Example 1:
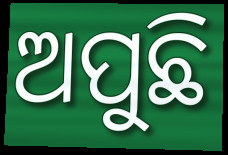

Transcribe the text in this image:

ଅପୁଛି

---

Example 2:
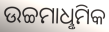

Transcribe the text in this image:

ଉଚ୍ଚମାଧୢମିକ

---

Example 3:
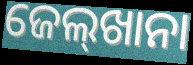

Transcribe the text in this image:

ଜେଲ୍‌ଖାନା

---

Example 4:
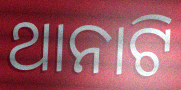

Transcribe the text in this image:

ଥାନାଟି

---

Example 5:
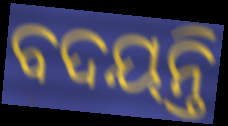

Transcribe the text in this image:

ବଦୟନ୍ତି